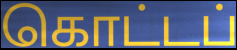
கொட்டப்